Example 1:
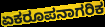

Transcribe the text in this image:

ಏಕರೂಪನಾಗರಿಕ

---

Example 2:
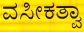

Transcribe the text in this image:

ವಸೀಕತ್ವಾ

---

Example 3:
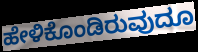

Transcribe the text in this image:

ಹೇಳಿಕೊಂಡಿರುವುದೂ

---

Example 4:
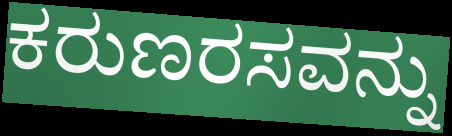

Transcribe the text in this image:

ಕರುಣರಸವನ್ನು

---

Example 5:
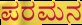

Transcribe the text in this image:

ಪರಮನ